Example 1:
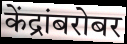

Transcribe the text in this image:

केंद्रांबरोबर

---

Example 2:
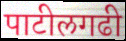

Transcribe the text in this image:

पाटीलगढी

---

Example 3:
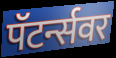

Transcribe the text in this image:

पॅटर्न्सवर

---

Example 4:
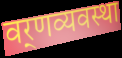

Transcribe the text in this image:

वर्णव्यवस्था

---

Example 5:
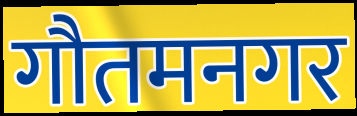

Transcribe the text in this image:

गौतमनगर